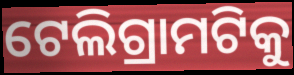
ଟେଲିଗ୍ରାମଟିକୁ